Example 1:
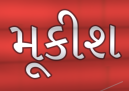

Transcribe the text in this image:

મૂકીશ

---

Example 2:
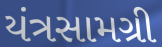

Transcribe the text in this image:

યંત્રસામગ્રી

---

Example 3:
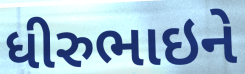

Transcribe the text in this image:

ધીરુભાઇને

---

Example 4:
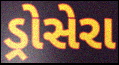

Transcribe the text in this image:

ડ્રોસેરા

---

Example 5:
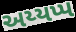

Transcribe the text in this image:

અય્યપ્પ